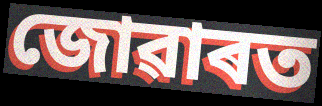
জোৱাৰত